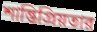
শান্তিপ্রিয়তার